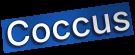
Coccus